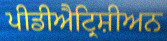
ਪੀਡੀਐਟ੍ਰਿਸ਼ੀਅਨ